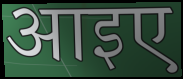
आइए